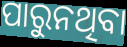
ପାରୁନଥିବା